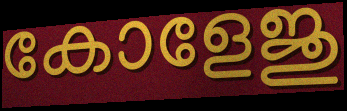
കോളേജു